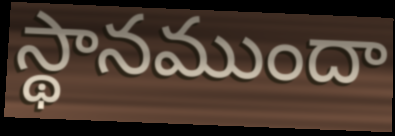
స్థానముందా